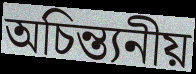
অচিন্ত্যনীয়